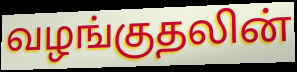
வழங்குதலின்